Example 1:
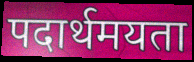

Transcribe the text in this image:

पदार्थमयता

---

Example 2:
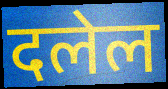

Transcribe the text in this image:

दलेल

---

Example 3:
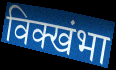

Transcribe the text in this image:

विक्खंभा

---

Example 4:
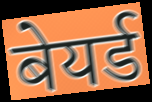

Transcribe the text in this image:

बेयर्ड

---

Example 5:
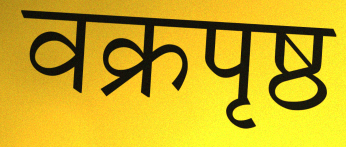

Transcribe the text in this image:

वक्रपृष्ठ